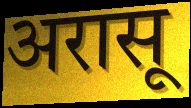
अरासू